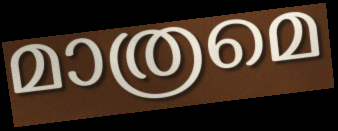
മാത്രമെ